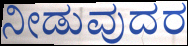
ನೀಡುವುದರ